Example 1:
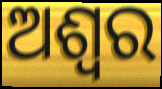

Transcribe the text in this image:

ଅଶ୍ୱର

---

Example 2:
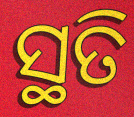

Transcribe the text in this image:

ସ୍ଥତି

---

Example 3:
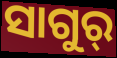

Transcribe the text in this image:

ସାଗୁର୍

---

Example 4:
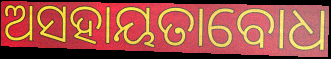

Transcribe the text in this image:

ଅସହାୟତାବୋଧ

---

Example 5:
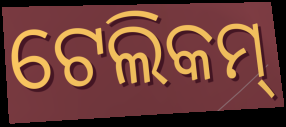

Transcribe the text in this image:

ଟେଲିକମ୍